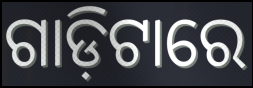
ଗାଡ଼ିଟାରେ